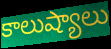
కాలుష్యాలు